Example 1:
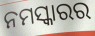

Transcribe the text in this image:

ନମସ୍କାରର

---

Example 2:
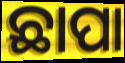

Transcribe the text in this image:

ଛାପା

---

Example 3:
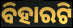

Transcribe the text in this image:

ବିହାରଟି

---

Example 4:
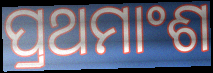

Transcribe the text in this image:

ପ୍ରଥମାଂଶ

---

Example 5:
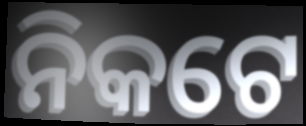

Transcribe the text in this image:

ନିକଟେ